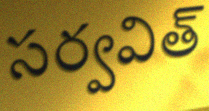
సర్వవిత్